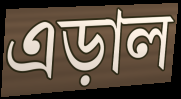
এড়াল